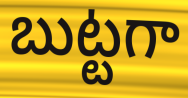
బుట్టగా